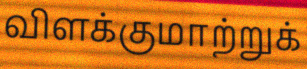
விளக்குமாற்றுக்